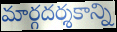
మార్గదర్శకాన్ని